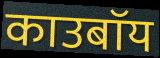
काउबॉय